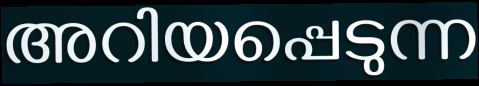
അറിയപ്പെടുന്ന